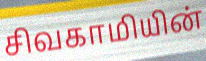
சிவகாமியின்